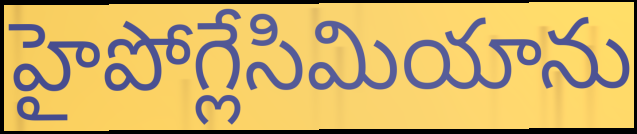
హైపోగ్లేసిమియాను